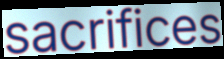
sacrifices